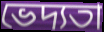
ভেদ্যতা